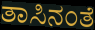
ತಾಸಿನಂತೆ